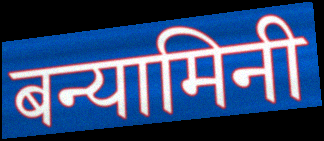
बन्यामिनी